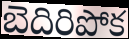
బెదిరిపోక